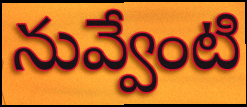
నువ్వేంటి